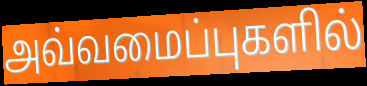
அவ்வமைப்புகளில்